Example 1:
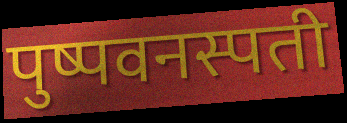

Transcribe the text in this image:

पुष्पवनस्पती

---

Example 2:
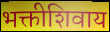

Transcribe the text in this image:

भक्तीशिवाय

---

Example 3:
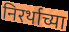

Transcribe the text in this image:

निरर्थाच्या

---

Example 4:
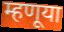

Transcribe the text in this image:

म्हणूया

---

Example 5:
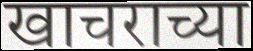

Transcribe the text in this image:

खाचराच्या